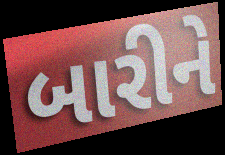
બારીને